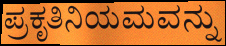
ಪ್ರಕೃತಿನಿಯಮವನ್ನು